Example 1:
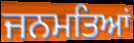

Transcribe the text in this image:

ਜਨਮਤਿਆਂ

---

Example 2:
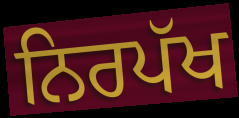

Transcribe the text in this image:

ਨਿਰਪੱਖ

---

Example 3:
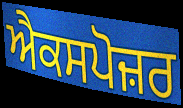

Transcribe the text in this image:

ਐਕਸਪੋਜ਼ਰ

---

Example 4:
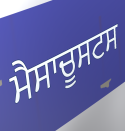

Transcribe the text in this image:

ਮੈਸਾਚੂਸਟਸ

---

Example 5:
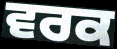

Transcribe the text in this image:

ਵਰਕ